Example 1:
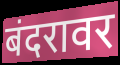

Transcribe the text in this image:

बंदरावर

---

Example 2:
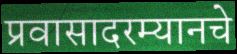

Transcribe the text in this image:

प्रवासादरम्यानचे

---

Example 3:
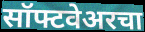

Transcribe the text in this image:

सॉफ्टवेअरचा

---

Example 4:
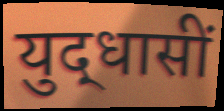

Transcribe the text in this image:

युद्धासीं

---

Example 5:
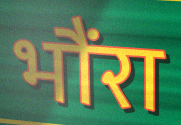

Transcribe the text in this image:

भौंरा